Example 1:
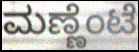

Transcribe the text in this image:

ಮಣ್ಣೆಂಟೆ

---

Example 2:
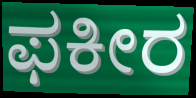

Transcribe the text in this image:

ಫಕೀರ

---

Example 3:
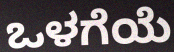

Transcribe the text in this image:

ಒಳಗೆಯೆ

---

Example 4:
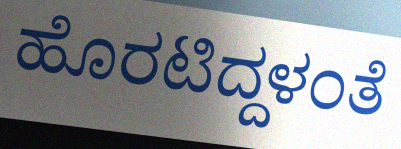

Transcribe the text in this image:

ಹೊರಟಿದ್ದಳಂತೆ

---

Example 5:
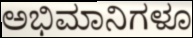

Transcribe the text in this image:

ಅಭಿಮಾನಿಗಳೂ